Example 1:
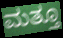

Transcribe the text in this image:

ಮತ್ತೂ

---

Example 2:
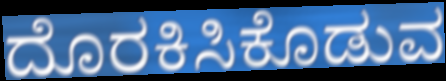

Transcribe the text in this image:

ದೊರಕಿಸಿಕೊಡುವ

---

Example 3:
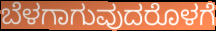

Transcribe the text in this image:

ಬೆಳಗಾಗುವುದರೊಳಗೆ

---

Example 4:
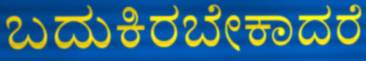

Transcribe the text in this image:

ಬದುಕಿರಬೇಕಾದರೆ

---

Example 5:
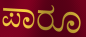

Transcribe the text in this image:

ಪಾರೂ